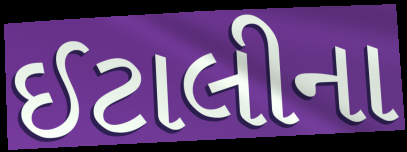
ઈટાલીના